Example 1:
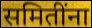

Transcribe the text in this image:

समितींना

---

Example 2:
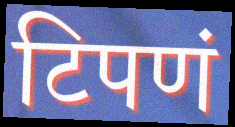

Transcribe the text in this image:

टिपणं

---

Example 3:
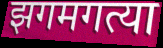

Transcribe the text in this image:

झगमगत्या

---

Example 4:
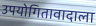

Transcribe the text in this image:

उपयोगितावादाला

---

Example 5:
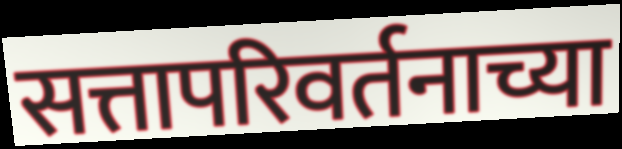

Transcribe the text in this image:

सत्तापरिवर्तनाच्या